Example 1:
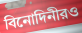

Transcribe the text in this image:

বিনোদিনীরও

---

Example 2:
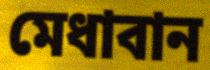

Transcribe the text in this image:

মেধাবান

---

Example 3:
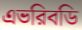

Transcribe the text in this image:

এভরিবডি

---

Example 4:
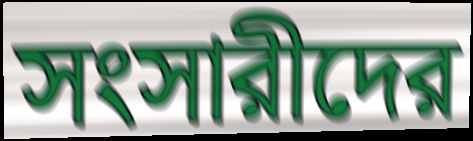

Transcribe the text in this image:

সংসারীদের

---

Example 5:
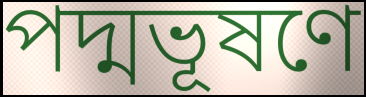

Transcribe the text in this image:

পদ্মভূষণে